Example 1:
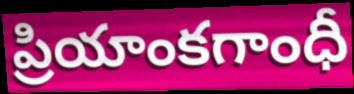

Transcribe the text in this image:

ప్రియాంకగాంధీ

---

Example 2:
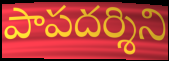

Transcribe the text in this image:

పాపదర్శిని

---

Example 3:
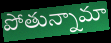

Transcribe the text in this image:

పోతున్నామా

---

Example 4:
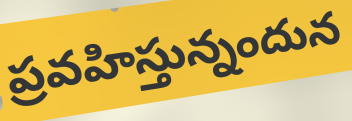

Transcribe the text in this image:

ప్రవహిస్తున్నందున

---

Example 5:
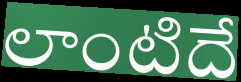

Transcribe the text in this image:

లాంటిదే